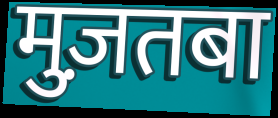
मुज़तबा